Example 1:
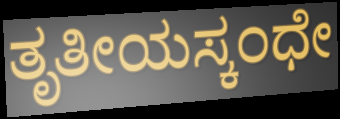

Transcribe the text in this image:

ತೃತೀಯಸ್ಕಂಧೇ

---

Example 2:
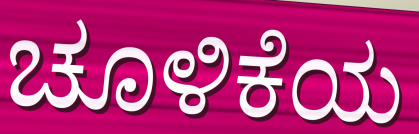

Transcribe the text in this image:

ಚೂಳಿಕೆಯ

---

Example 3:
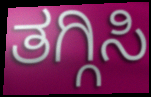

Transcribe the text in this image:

ತಗ್ಗಿಸಿ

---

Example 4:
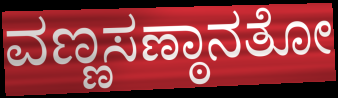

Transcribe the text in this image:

ವಣ್ಣಸಣ್ಠಾನತೋ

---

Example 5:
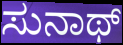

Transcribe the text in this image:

ಸುನಾಥ್